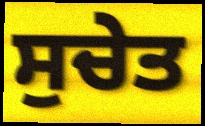
ਸੁਚੇਤ